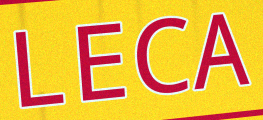
LECA